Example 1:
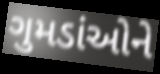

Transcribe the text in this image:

ગુમડાંઓને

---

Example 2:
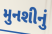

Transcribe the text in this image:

મુનશીનું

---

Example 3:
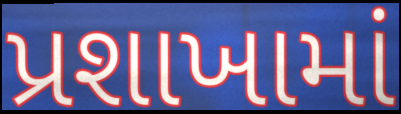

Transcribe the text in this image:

પ્રશાખામાં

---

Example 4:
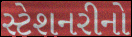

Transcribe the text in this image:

સ્ટેશનરીનો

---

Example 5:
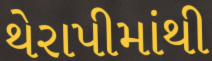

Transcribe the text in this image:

થેરાપીમાંથી